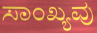
ಸಾಂಖ್ಯವು